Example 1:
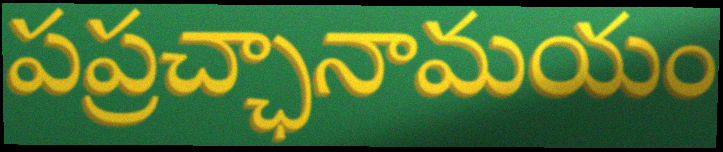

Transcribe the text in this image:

పప్రచ్ఛానామయం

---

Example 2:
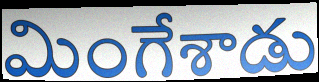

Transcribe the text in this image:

మింగేశాడు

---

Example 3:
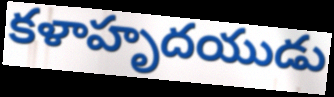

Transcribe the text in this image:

కళాహృదయుడు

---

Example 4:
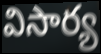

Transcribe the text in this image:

విసార్య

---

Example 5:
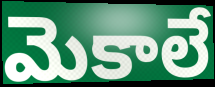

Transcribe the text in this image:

మెకాలే